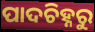
ପାଦଚିହ୍ନରୁ